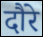
दौरे